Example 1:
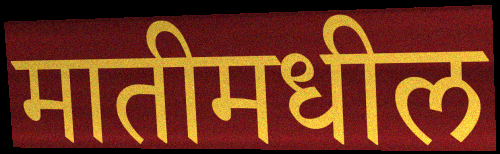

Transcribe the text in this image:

मातीमधील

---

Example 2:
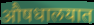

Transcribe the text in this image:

औषधालयात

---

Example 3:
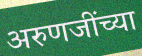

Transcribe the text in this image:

अरुणजींच्या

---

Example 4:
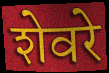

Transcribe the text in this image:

शेवरे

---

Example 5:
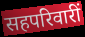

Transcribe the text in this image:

सहपरिवारीं